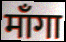
माँगा